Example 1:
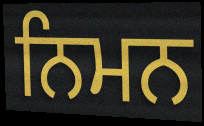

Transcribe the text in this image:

ਨਿਮਨ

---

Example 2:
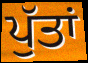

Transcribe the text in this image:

ਪੁੱਤਾਂ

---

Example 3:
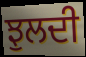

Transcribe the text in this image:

ਝੁਲਦੀ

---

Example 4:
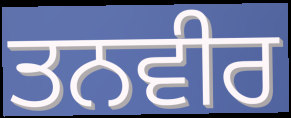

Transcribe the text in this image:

ਤਨਵੀਰ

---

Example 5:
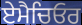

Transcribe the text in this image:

ਏਮੈਚਿਓਰ